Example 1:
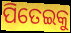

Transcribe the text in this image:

ପିତେଇକୁ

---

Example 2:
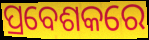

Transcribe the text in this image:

ପ୍ରବେଶକରେ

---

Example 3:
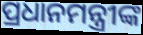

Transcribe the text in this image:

ପ୍ରଧାନମନ୍ତ୍ରୀଙ୍କ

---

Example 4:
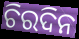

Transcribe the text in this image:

ଚିରଦିନ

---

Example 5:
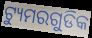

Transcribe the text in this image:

ଟ୍ୟୁମରଗୁଡିକ